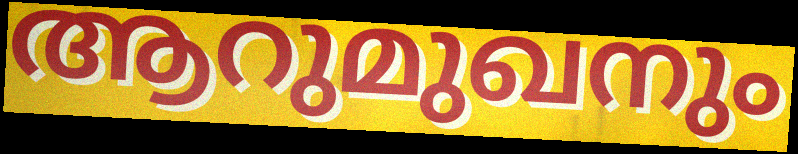
ആറുമുഖനും